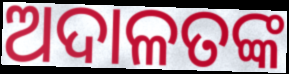
ଅଦାଳତଙ୍କ